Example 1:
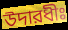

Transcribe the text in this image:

উদারধীঃ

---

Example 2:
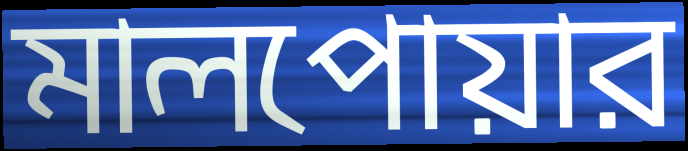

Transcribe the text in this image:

মালপোয়ার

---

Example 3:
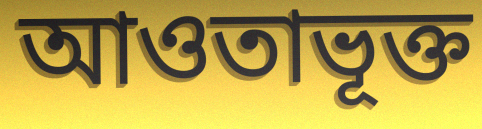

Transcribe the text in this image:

আওতাভূক্ত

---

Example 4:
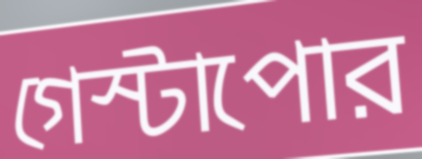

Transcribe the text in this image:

গেস্টাপোর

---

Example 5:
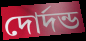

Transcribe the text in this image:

দোর্দন্ড